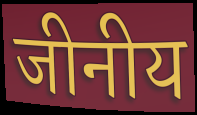
जीनीय